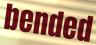
bended